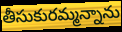
తీసుకురమ్మన్నాను